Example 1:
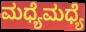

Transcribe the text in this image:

ಮಧ್ಯೆಮಧ್ಯೆ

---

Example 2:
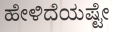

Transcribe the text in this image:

ಹೇಳಿದೆಯಷ್ಟೇ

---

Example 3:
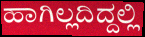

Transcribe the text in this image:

ಹಾಗಿಲ್ಲದಿದ್ದಲ್ಲಿ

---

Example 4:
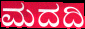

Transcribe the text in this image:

ಮದದಿ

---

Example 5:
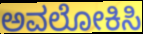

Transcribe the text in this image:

ಅವಲೋಕಿಸಿ